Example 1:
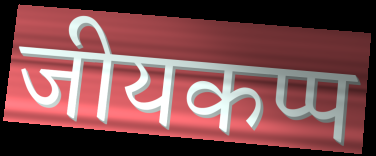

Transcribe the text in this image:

जीयकप्प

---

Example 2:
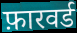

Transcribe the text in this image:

फ़ारवर्ड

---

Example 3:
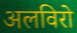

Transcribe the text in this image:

अलविरो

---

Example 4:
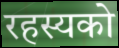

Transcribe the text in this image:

रहस्यको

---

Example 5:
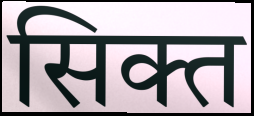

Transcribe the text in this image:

सिक्त